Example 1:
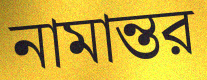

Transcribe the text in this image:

নামান্তর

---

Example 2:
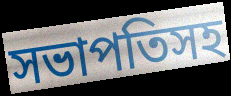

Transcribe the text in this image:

সভাপতিসহ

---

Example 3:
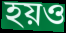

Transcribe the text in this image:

হয়ও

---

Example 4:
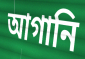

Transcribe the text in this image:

আগানি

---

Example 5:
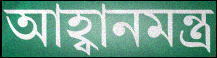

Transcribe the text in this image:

আহ্বানমন্ত্র